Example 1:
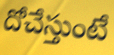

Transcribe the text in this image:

దోచేస్తుంటే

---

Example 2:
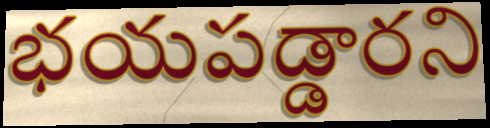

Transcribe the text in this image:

భయపడ్డారని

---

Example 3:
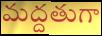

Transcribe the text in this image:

మద్దతుగా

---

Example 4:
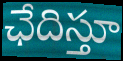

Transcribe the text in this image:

ఛేదిస్తూ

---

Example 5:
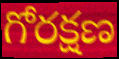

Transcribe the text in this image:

గోరక్షణ